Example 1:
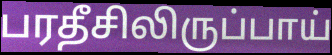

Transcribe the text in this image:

பரதீசிலிருப்பாய்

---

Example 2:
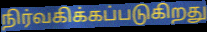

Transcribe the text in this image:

நிர்வகிக்கப்படுகிறது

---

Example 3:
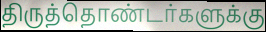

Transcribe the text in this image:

திருத்தொண்டர்களுக்கு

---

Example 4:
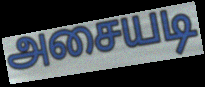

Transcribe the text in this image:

அசையடி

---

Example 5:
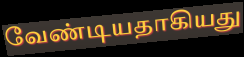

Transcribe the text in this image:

வேண்டியதாகியது